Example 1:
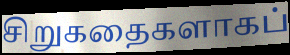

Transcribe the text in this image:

சிறுகதைகளாகப்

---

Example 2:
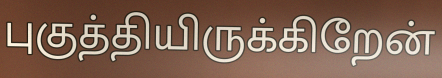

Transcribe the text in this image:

புகுத்தியிருக்கிறேன்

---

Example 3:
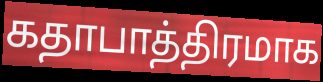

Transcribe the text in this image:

கதாபாத்திரமாக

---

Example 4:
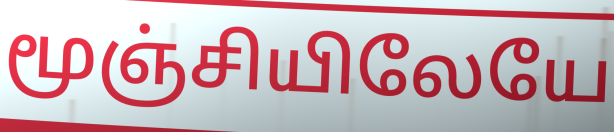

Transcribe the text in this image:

மூஞ்சியிலேயே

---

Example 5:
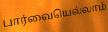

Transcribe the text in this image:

பார்வையெல்லாம்